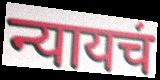
न्यायचं